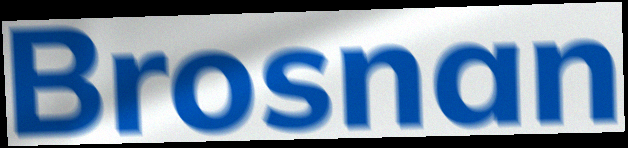
Brosnan